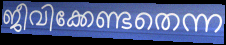
ജീവിക്കേണ്ടതെന്ന